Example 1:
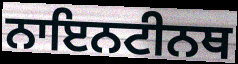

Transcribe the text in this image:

ਨਾਇਨਟੀਨਥ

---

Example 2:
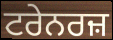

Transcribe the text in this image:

ਟਰੇਨਰਜ਼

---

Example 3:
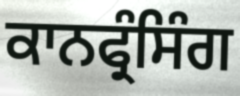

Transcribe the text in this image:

ਕਾਨਫ੍ਰੰਸਿੰਗ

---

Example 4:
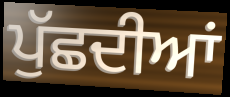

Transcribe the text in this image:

ਪੁੱਛਦੀਆਂ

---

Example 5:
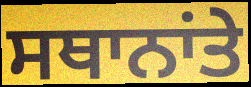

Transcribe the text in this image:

ਸਥਾਨਾਂਤੇ